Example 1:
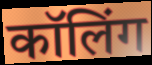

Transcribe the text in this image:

कॉलिंग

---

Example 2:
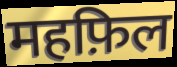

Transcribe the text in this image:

महफ़िल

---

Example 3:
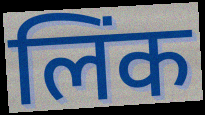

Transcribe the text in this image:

लिंक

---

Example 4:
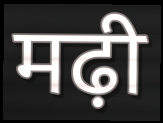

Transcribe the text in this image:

मढ़ी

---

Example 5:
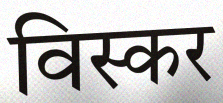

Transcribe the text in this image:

विस्कर